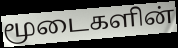
மூடைகளின்